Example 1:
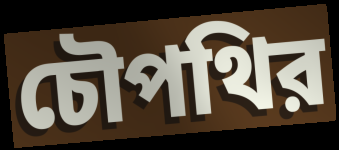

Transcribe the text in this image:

চৌপথির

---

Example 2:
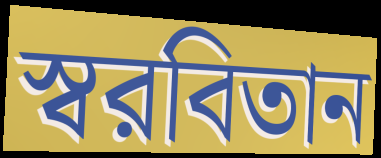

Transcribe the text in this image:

স্বরবিতান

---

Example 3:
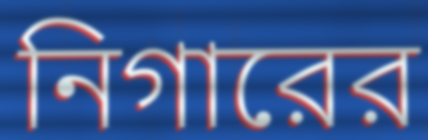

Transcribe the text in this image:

নিগারের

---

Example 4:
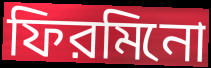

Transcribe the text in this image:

ফিরমিনো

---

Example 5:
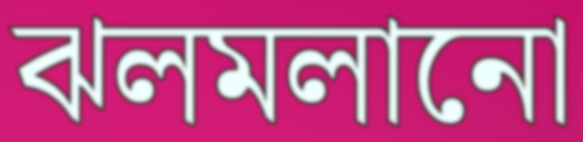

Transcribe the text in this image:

ঝলমলানো